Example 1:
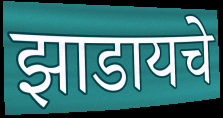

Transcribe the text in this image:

झाडायचे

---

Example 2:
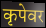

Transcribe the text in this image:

कृपेवर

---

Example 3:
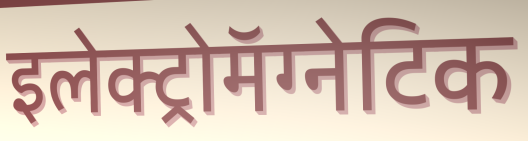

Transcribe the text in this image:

इलेक्ट्रोमॅग्नेटिक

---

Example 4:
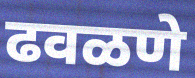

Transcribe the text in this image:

ढवळणे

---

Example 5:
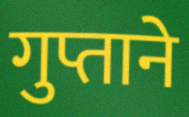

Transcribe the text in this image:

गुप्ताने